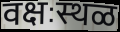
वक्षःस्थळ